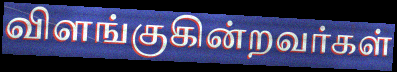
விளங்குகின்றவர்கள்